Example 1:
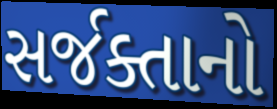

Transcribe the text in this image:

સર્જક્તાનો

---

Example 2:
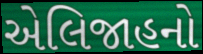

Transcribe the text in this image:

એલિજાહનો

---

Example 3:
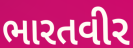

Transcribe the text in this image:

ભારતવીર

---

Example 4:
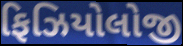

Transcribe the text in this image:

ફિઝિયોલોજી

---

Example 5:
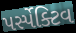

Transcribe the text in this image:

પર્સ્પેક્ટિવ